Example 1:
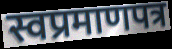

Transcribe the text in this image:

स्वप्रमाणपत्र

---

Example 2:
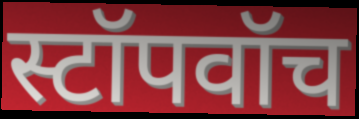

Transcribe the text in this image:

स्टॉपवॉच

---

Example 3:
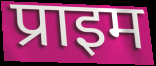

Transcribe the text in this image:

प्राइम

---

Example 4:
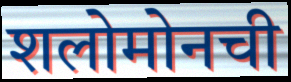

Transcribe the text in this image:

शलोमोनची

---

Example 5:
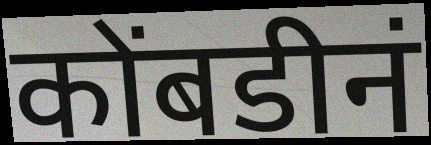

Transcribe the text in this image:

कोंबडीनं